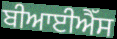
ਬੀਆਈਐੱਸ